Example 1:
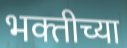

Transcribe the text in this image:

भक्‍तीच्या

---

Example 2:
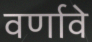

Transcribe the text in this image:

वर्णावे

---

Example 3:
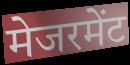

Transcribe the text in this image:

मेजरमेंट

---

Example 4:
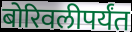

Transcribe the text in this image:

बोरिवलीपर्यंत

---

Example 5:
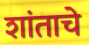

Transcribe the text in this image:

शांताचे